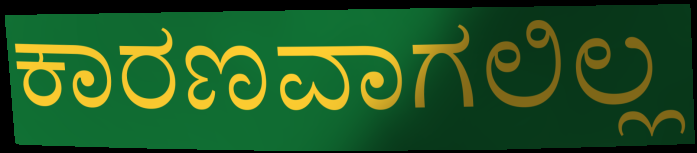
ಕಾರಣವಾಗಲಿಲ್ಲ